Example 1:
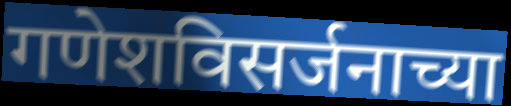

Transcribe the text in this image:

गणेशविसर्जनाच्या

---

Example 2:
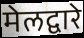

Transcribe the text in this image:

मेलद्वारे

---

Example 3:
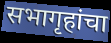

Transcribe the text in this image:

सभागृहांचा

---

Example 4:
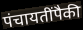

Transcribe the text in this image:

पंचायतींपैकी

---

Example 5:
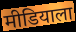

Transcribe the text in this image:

मीडियाला